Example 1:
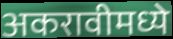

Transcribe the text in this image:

अकरावीमध्ये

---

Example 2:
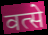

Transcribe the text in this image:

वत्से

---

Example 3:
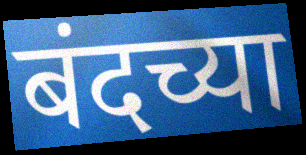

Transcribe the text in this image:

बंदच्या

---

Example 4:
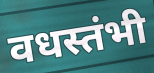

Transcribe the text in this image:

वधस्तंभी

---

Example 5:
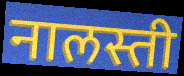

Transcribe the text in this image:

नालस्ती